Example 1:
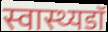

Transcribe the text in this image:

स्वास्थ्यडॉ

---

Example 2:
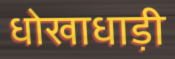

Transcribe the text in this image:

धोखाधाड़ी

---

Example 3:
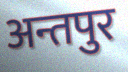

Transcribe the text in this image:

अन्तपुर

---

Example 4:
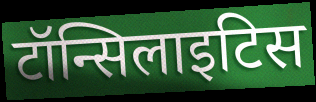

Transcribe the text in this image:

टॉन्सिलाइटिस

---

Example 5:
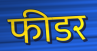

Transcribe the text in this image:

फीडर